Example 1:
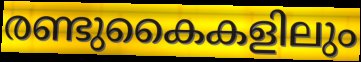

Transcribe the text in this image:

രണ്ടുകൈകളിലും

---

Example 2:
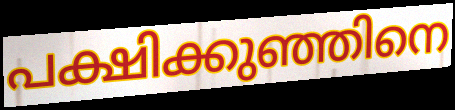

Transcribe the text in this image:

പക്ഷിക്കുഞ്ഞിനെ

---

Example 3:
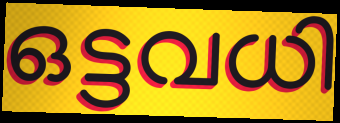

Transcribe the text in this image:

ഒട്ടവധി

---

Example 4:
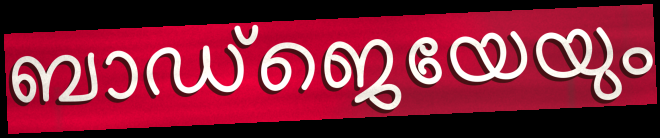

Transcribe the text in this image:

ബാഡ്ജെയേയും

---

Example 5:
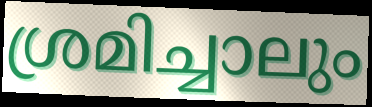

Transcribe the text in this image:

ശ്രമിച്ചാലും